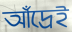
আঁদ্রেই